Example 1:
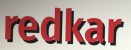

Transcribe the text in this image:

redkar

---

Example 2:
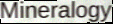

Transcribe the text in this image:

Mineralogy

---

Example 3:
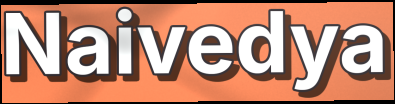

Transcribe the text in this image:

Naivedya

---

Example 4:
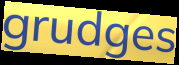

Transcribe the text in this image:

grudges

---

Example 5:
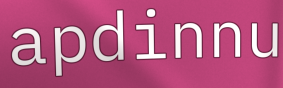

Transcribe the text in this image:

apdinnu